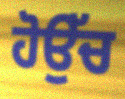
ਹੋਉੱਚ